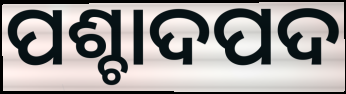
ପଶ୍ଚାଦପଦ